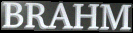
BRAHM